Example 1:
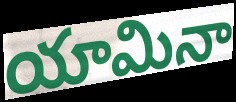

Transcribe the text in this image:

యామినా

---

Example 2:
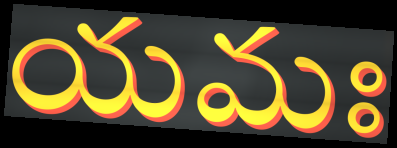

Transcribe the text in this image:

యమః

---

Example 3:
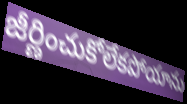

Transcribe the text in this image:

జీర్ణించుకోలేకపోయాను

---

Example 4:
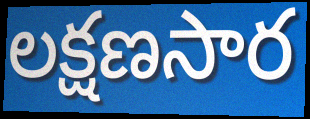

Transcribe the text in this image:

లక్షణసార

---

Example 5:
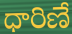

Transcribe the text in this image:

ధారిణే